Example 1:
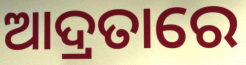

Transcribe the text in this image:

ଆଦ୍ରତାରେ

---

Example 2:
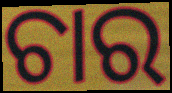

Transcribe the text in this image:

ଚାର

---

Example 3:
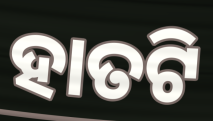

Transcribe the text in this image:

ହାତଟି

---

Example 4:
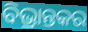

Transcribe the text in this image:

ବିଭ୍ରାନ୍ତକର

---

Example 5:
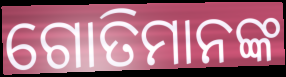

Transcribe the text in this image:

ଗୋତିମାନଙ୍କ